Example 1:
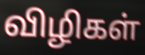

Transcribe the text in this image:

விழிகள்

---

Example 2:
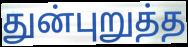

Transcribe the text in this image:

துன்புறுத்த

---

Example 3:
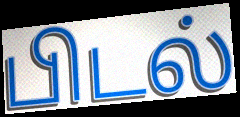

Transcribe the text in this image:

பிடல்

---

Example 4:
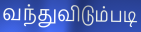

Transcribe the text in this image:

வந்துவிடும்படி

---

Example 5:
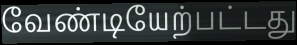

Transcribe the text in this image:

வேண்டியேற்பட்டது